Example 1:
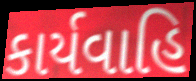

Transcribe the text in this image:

કાર્યવાહિ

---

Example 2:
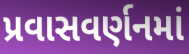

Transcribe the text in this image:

પ્રવાસવર્ણનમાં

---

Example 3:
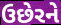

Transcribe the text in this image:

ઉછેરને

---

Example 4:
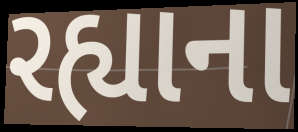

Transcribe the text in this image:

રહ્યાના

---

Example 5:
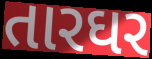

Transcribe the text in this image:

તારઘર